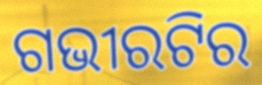
ଗଭୀରଟିର